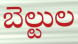
బెల్టుల